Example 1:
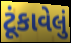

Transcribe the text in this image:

ટૂંકાવેલું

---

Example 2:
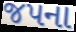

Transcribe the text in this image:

જપના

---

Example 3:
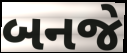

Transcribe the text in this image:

બનજે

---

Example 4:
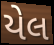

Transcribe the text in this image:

યેલ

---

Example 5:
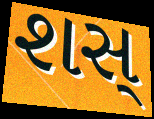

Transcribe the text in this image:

શસ્